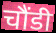
चौंडी